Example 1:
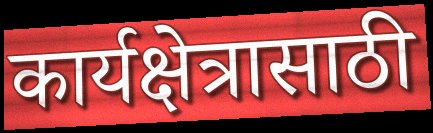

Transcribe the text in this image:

कार्यक्षेत्रासाठी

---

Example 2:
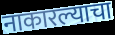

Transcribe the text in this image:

नाकारल्याचा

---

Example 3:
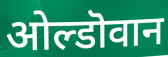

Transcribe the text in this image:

ओल्डॊवान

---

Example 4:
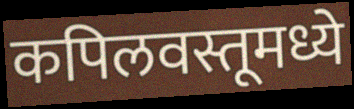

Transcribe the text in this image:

कपिलवस्तूमध्ये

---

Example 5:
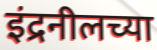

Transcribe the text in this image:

इंद्रनीलच्या